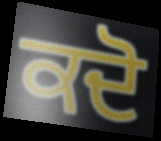
ਕਦੋ